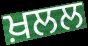
ਖ਼ਲਲ